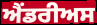
ਐਂਡਰੀਅਸ